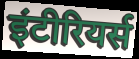
इंटीरियर्स